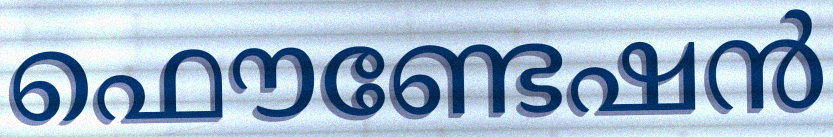
ഫൌണ്ടേഷൻ